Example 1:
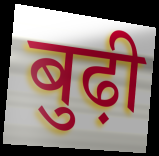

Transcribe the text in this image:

बुढ़ी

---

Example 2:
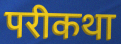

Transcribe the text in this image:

परीकथा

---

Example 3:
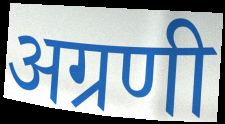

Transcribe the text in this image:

अग्रणी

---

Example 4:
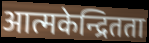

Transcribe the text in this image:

आत्मकेन्द्रितता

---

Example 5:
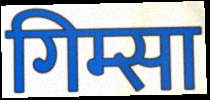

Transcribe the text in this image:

गिम्सा